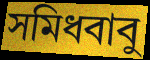
সমিধবাবু